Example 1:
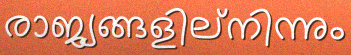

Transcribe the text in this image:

രാജ്യങ്ങളില്നിന്നും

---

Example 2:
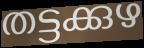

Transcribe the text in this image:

തട്ടക്കുഴ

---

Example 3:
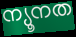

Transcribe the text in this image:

ന്യൂനത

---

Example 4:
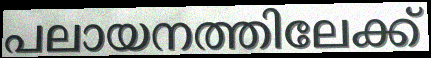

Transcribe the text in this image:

പലായനത്തിലേക്ക്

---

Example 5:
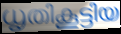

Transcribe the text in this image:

ധൃതികൂട്ടിയ